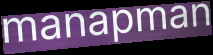
manapman